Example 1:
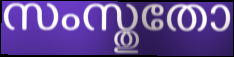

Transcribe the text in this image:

സംസ്തുതോ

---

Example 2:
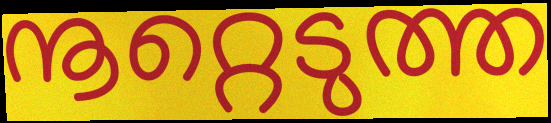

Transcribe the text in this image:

നൂറ്റെടുത്ത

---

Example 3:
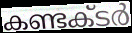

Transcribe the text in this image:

കണ്ടക്‌ടർ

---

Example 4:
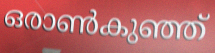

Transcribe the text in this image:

ഒരാൺകുഞ്ഞ്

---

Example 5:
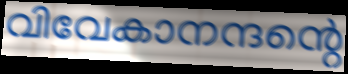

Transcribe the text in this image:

വിവേകാനന്ദന്റെ